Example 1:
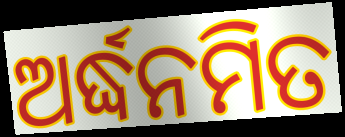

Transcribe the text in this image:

ଅର୍ଦ୍ଧନମିତ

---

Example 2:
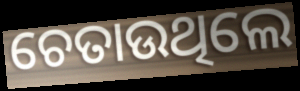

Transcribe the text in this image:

ଚେତାଉଥିଲେ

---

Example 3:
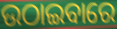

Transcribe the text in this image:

ଉଠାଇବାରେ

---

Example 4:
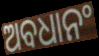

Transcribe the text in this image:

ଅବଧାନଂ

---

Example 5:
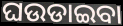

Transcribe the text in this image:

ଘଉଡାଇବା